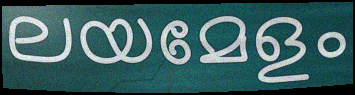
ലയമേളം